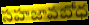
సహజావబోధ